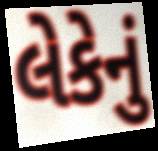
લેકેનું